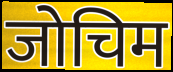
जोचिम